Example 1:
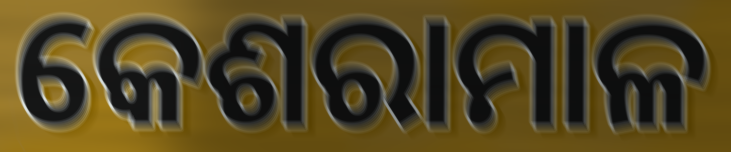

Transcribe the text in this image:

କେଶରାମାଳ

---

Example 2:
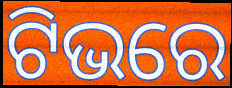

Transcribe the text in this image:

ଟିଭରେ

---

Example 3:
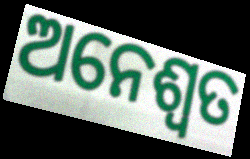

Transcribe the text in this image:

ଅନେଶ୍ଵତ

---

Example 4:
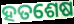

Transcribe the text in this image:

ହତଶେଷ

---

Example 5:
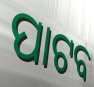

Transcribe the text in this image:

ପାଟବ